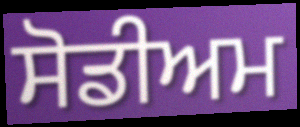
ਸੋਡੀਅਮ